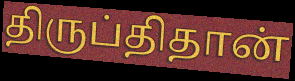
திருப்திதான்